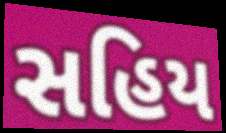
સહિય